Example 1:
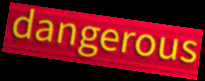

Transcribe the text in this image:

dangerous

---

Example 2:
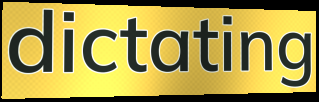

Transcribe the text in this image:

dictating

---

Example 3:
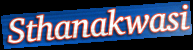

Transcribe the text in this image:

Sthanakwasi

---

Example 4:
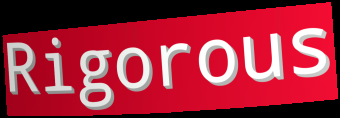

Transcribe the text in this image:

Rigorous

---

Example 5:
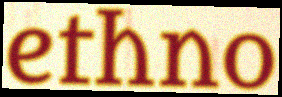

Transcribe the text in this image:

ethno